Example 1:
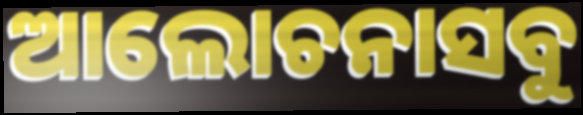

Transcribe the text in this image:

ଆଲୋଚନାସବୁ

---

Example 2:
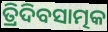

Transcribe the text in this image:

ତ୍ରିଦିବସାତ୍ମକ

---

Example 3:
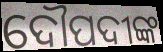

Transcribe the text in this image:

ଦୌପଦୀଙ୍କ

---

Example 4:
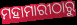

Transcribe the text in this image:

ମହାମାରୀଠାରୁ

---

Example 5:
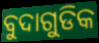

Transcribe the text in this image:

ବୁଦାଗୁଡିକ